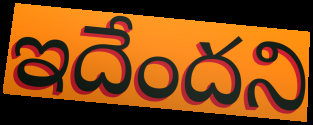
ఇదేందని